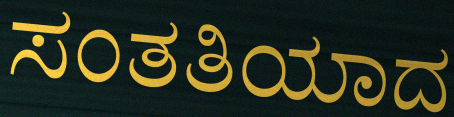
ಸಂತತಿಯಾದ